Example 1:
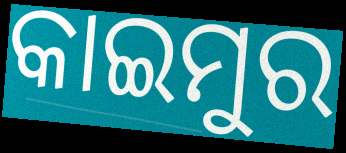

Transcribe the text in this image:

କାଇମୁର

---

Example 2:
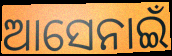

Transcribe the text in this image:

ଆସେନାଇଁ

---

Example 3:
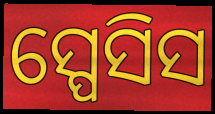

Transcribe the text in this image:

ସ୍ପେସିସ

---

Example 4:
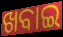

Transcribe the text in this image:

ଖବାଇ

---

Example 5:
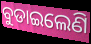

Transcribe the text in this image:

ବୁଡାଇଲେଣି